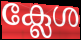
ക്ലേശ